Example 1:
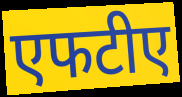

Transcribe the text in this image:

एफटीए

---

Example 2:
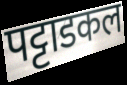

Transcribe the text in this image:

पट्टाडकल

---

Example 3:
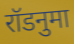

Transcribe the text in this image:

रॉडनुमा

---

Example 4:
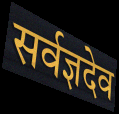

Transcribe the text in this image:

सर्वज्ञदेव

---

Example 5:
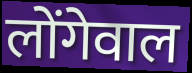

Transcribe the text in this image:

लोंगेवाल